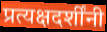
प्रत्यक्षदर्शींनी